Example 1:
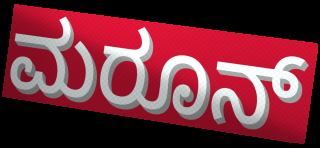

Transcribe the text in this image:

ಮರೂನ್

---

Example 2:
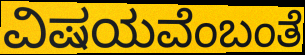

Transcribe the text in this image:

ವಿಷಯವೆಂಬಂತೆ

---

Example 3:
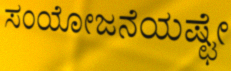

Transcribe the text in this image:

ಸಂಯೋಜನೆಯಷ್ಟೇ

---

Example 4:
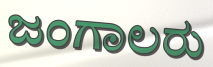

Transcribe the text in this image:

ಜಂಗಾಲರು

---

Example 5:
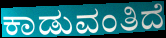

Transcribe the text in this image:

ಕಾಡುವಂತಿದೆ